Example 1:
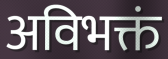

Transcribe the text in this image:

अविभक्तं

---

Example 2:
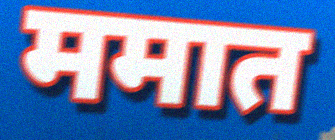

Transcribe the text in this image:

ममात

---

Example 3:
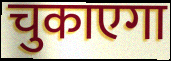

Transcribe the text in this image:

चुकाएगा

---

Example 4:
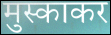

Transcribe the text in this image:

मुस्काकर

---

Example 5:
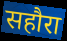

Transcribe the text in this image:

सहौरा